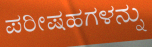
ಪರೀಷಹಗಳನ್ನು